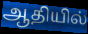
ஆதியில்